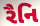
રૈનિ